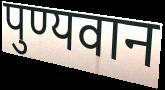
पुण्यवान